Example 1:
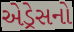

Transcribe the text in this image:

એડ્રેસનો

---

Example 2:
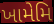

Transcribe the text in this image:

ખામેમિ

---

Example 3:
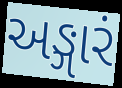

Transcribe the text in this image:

અઙ્ગારં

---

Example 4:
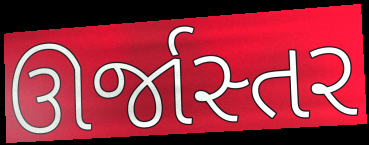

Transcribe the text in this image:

ઊર્જાસ્તર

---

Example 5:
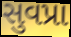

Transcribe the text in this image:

સુવપ્રા